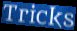
Tricks